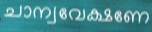
ചാന്വവേക്ഷണേ